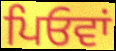
ਪਿਓਵਾਂ